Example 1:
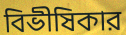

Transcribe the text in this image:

বিভীষিকার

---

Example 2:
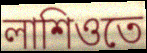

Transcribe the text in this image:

লাশিওতে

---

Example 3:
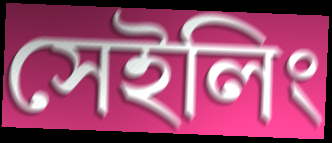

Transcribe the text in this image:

সেইলিং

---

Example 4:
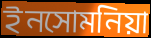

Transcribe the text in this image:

ইনসোমনিয়া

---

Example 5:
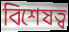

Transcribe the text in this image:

বিশেষত্ব